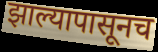
झाल्यापासूनच